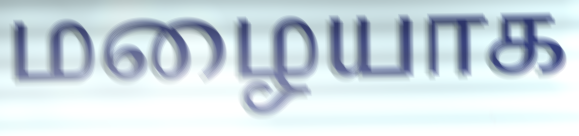
மழையாக